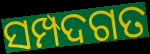
ସମ୍ପଦଗତ